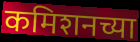
कमिशनच्या